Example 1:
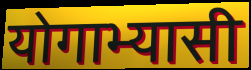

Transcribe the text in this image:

योगाभ्यासी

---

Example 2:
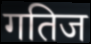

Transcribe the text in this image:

गतिज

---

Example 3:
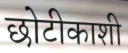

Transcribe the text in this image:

छोटीकाशी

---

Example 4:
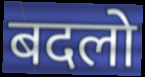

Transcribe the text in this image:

बदलो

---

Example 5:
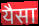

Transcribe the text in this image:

यैसा